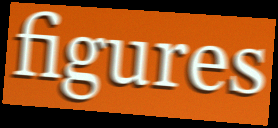
figures